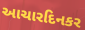
આચારદિનકર